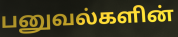
பனுவல்களின்